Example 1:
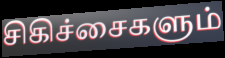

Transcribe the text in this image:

சிகிச்சைகளும்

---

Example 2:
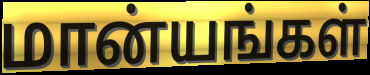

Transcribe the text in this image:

மான்யங்கள்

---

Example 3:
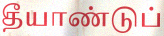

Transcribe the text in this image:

தீயாண்டுப்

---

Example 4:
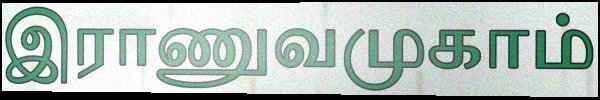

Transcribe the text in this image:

இராணுவமுகாம்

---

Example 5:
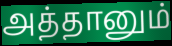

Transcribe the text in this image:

அத்தானும்